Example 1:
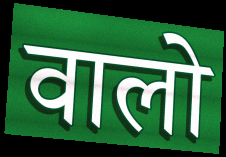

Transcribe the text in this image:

वालो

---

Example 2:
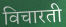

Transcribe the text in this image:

विचारती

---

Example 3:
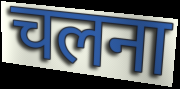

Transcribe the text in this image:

चलना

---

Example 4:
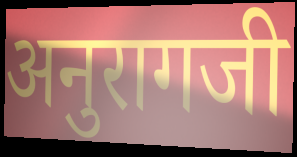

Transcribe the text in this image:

अनुरागजी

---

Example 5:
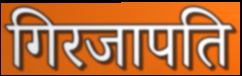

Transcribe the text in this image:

गिरजापति